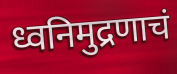
ध्वनिमुद्रणाचं